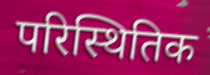
परिस्थितिक